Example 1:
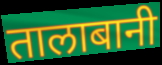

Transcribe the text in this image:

तालाबानी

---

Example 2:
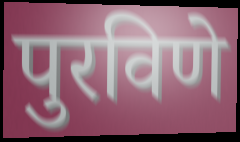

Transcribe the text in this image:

पुरविणे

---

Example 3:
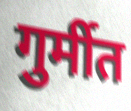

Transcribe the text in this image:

गुर्मीत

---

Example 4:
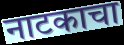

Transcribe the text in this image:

नाटकाचा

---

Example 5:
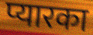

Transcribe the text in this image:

प्यारका